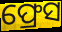
ଫ୍ରେସ